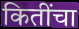
कितींचा